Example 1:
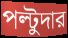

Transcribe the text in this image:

পল্টুদার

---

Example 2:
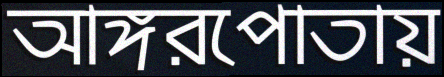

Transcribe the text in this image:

আঙ্গরপোতায়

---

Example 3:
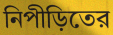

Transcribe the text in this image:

নিপীড়িতের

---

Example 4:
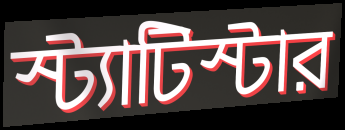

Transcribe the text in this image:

স্ট্যাটিস্টার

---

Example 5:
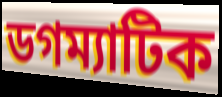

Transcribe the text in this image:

ডগম্যাটিক